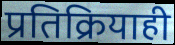
प्रतिक्रियाही